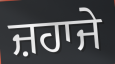
ਜ਼ਹਾਜੇ